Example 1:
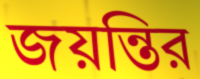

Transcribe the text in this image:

জয়ন্তির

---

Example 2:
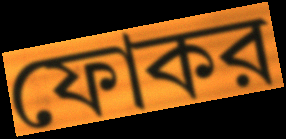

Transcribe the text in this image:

ফোকর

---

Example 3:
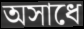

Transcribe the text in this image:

অসাধে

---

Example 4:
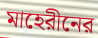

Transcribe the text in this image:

মাহেরীনের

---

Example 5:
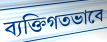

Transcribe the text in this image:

ব্যক্তিগতভাবে